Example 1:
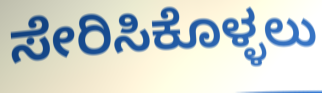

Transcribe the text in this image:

ಸೇರಿಸಿಕೊಳ್ಳಲು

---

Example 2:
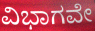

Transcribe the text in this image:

ವಿಭಾಗವೇ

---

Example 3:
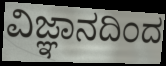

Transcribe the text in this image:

ವಿಜ್ಞಾನದಿಂದ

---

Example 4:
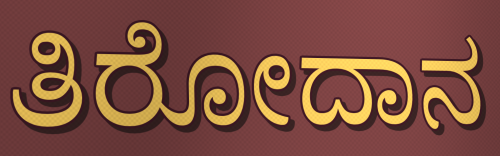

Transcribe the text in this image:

ತಿರೋದಾನ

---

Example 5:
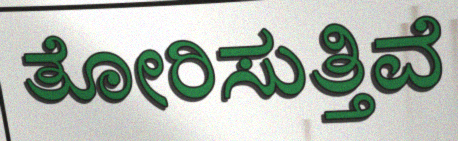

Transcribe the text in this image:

ತೋರಿಸುತ್ತಿವೆ